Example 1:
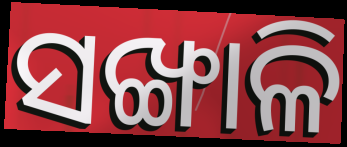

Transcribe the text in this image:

ସଙ୍ଖାଳି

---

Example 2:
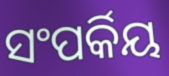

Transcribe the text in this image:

ସଂପର୍କିୟ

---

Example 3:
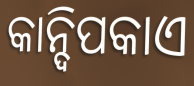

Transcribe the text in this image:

କାନ୍ଦିପକାଏ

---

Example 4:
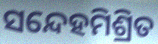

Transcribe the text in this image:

ସନ୍ଦେହମିଶ୍ରିତ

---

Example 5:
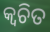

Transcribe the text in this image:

କ୍ବଚିତ